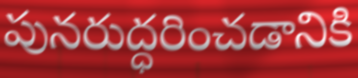
పునరుద్ధరించడానికి